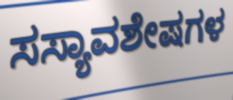
ಸಸ್ಯಾವಶೇಷಗಳ